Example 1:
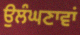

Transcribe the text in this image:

ਉਲੰਘਣਾਵਾਂ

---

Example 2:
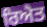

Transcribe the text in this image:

ਰਿਐਤ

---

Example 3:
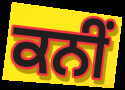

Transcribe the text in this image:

ਕਨੀਂ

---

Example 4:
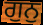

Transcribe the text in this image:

ਗੁਨੁ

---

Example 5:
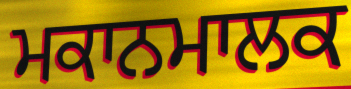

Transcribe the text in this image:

ਮਕਾਨਮਾਲਕ